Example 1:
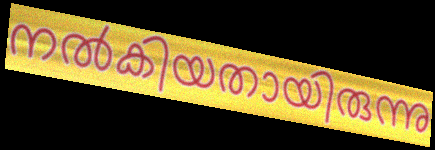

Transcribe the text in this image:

നൽകിയതായിരുന്നു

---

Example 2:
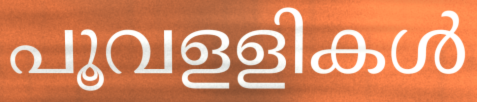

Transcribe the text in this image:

പൂവളളികൾ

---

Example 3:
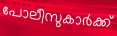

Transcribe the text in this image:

പോലീസുകാർക്ക്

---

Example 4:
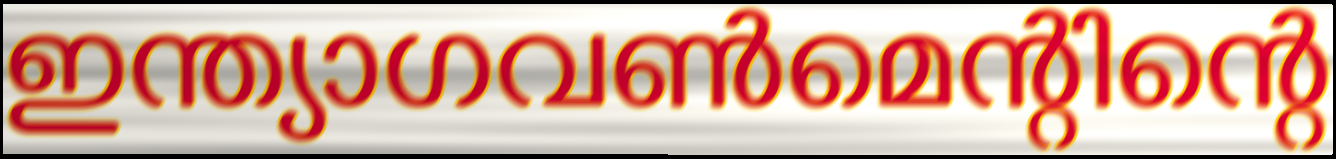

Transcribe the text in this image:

ഇന്ത്യാഗവൺമെന്റിന്റെ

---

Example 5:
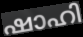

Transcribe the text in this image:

ഷാഹി